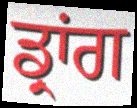
ਡ੍ਰਾਂਗ